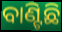
ବାଣ୍ଟିଛି